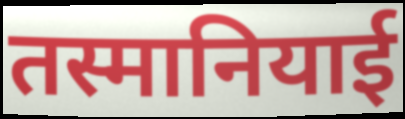
तस्मानियाई